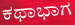
ಕಥಾಭಾಗ